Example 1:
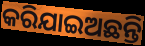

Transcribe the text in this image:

କରିଯାଇଅଛନ୍ତି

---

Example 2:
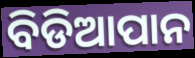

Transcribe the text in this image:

ବିଡିଆପାନ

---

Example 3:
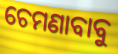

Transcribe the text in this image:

ଚେମଣାବାବୁ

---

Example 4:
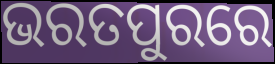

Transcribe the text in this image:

ଭରତପୁରରେ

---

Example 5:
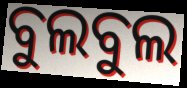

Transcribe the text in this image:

ବୁଲବୁଲ